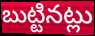
బుట్టినట్లు